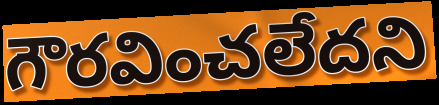
గౌరవించలేదని